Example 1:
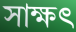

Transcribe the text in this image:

সাক্ষৎ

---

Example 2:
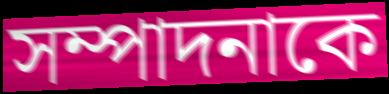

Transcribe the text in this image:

সম্পাদনাকে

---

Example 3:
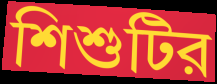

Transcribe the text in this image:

শিশুটির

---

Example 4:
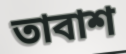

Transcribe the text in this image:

তাবাশ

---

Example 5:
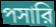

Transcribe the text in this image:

পসারি